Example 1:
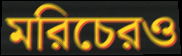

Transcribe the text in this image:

মরিচেরও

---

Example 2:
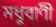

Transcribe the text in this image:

মধুবাণী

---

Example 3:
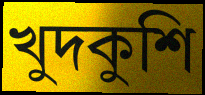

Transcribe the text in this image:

খুদকুশি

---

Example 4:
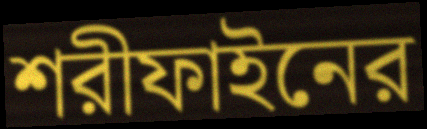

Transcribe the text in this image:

শরীফাইনের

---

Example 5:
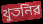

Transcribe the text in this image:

থুতনির